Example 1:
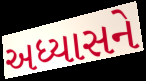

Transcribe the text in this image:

અધ્યાસને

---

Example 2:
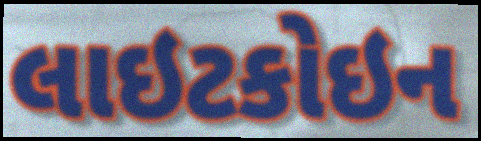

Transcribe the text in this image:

લાઇટકોઇન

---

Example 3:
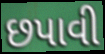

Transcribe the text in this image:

છપાવી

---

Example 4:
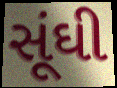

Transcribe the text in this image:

સૂંઘી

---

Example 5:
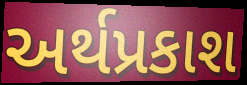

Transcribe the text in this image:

અર્થપ્રકાશ